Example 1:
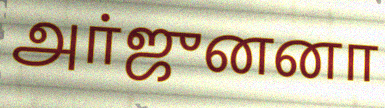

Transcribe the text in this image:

அர்ஜுனனா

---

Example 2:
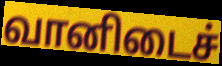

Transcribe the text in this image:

வானிடைச்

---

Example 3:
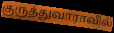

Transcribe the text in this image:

குருத்துவாராவில்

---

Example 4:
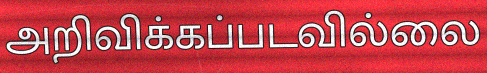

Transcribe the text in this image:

அறிவிக்கப்படவில்லை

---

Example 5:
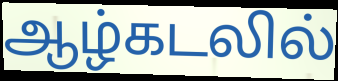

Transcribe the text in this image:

ஆழ்கடலில்